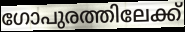
ഗോപുരത്തിലേക്ക്